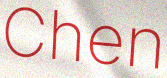
Chen